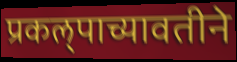
प्रकल्पाच्यावतीने